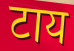
टाय